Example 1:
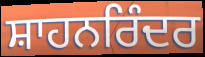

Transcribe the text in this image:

ਸ਼ਾਹਨਰਿੰਦਰ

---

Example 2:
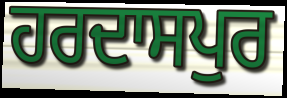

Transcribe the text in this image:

ਹਰਦਾਸਪੁਰ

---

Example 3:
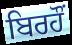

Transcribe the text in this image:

ਬਿਰਹੌਂ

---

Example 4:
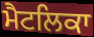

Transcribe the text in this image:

ਮੈਟਲਿਕਾ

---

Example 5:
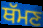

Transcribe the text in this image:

ਥੱਮਣ